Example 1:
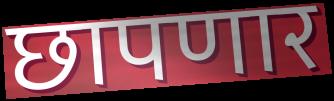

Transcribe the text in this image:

छापणार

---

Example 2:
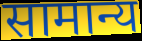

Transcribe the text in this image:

सामान्य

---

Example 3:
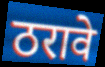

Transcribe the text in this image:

ठरावे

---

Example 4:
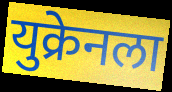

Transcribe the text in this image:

युक्रेनला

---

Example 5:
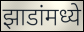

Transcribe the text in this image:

झाडांमध्ये